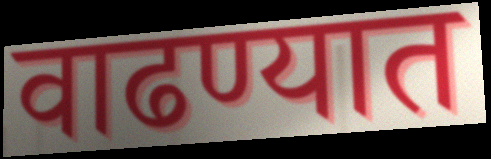
वाढण्यात